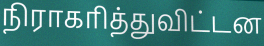
நிராகரித்துவிட்டன